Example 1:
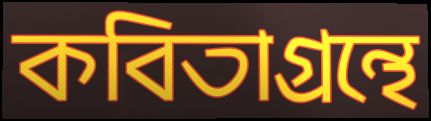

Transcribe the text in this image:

কবিতাগ্রন্থে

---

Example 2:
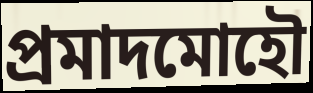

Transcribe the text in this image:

প্রমাদমোহৌ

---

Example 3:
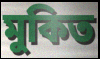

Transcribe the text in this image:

মুকিত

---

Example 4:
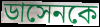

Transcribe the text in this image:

ডাসেনকে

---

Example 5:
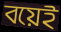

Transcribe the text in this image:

বয়েই